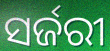
ସର୍ଜରୀ